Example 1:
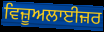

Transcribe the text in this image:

ਵਿਜ਼ੂਅਲਾਈਜ਼ਰ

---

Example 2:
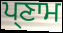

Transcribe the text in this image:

ਪ੍ਣਾਮ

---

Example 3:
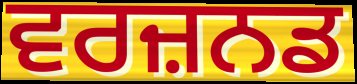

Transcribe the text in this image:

ਵਰਜ਼ਨਡ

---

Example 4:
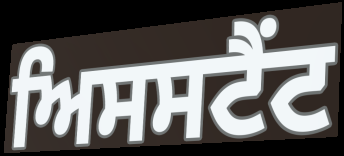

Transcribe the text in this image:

ਅਿਸਸਟੈਂਟ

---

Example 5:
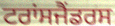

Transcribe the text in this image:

ਟਰਾਂਸਜੈਂਡਰਸ